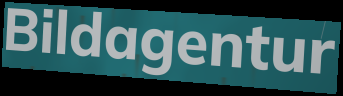
Bildagentur